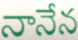
నానేన